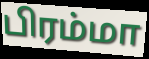
பிரம்மா